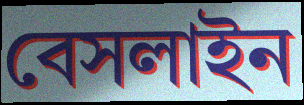
বেসলাইন